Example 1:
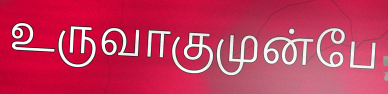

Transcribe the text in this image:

உருவாகுமுன்பே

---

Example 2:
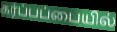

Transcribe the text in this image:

கர்ப்பப்பையில்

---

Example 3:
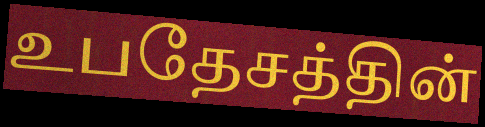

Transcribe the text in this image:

உபதேசத்தின்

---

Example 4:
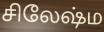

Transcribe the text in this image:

சிலேஷ்ம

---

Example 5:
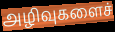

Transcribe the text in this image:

அழிவுகளைச்